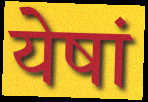
येषां